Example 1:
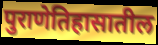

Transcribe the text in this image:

पुराणेतिहासातील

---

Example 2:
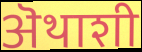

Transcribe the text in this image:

ऄथाशी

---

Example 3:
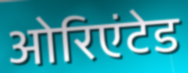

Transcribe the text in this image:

ओरिएंटेड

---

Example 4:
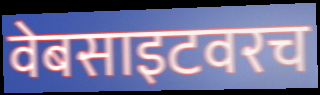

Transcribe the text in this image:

वेबसाइटवरच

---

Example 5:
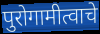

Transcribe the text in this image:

पुरोगामीत्वाचे